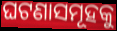
ଘଟଣାସମୂହକୁ